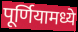
पूर्णियामध्ये